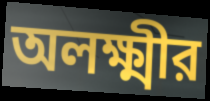
অলক্ষ্মীর